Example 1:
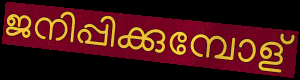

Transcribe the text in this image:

ജനിപ്പിക്കുമ്പോള്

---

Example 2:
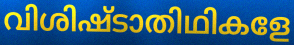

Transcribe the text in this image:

വിശിഷ്ടാതിഥികളേ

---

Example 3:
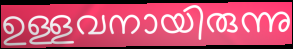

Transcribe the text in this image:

ഉള്ളവനായിരുന്നു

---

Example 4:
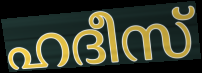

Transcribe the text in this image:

ഹദീസ്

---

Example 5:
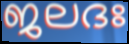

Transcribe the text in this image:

ജലദഃ